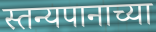
स्तन्यपानाच्या